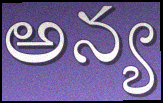
అన్య